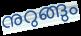
നുറുങ്ങും